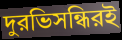
দুরভিসন্ধিরই